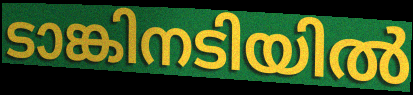
ടാങ്കിനടിയിൽ